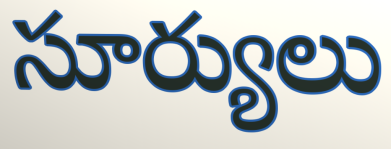
సూర్యులు